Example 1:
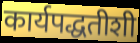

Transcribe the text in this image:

कार्यपद्धतीशी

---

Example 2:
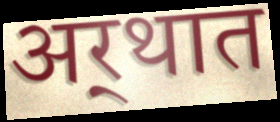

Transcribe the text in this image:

अर्थात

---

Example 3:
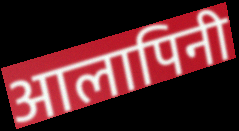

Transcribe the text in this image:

आलापिनी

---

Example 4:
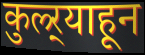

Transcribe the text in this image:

कुल्र्याहून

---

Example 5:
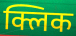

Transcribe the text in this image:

क्लिक